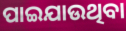
ପାଇଯାଉଥିବା